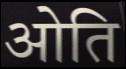
ओति